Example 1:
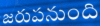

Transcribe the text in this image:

జరుపనుంది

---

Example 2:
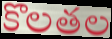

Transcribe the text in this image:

కొలతల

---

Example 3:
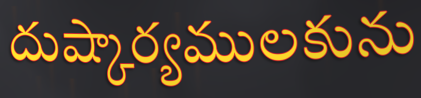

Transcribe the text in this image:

దుష్కార్యములకును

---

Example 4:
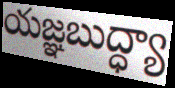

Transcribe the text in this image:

యజ్ఞబుద్ధ్యా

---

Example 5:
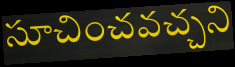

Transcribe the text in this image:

సూచించవచ్చని